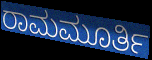
ರಾಮಮೂರ್ತಿ